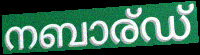
നബാര്ഡ്